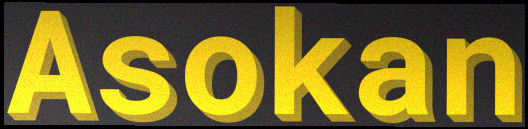
Asokan